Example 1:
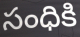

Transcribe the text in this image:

సంధికి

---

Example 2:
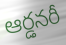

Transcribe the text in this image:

ఆర్డనరీ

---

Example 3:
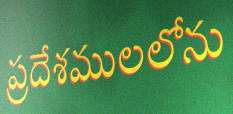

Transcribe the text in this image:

ప్రదేశములలోను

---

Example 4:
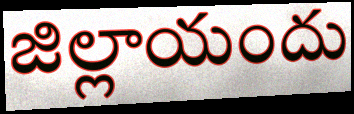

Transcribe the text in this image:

జిల్లాయందు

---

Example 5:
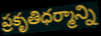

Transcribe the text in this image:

ప్రకృతిధర్మాన్ని